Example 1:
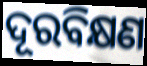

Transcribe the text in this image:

ଦୂରବିକ୍ଷଣ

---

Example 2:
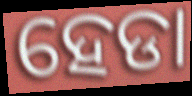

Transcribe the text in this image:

ହେଡା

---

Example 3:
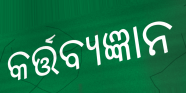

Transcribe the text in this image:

କର୍ତ୍ତବ୍ୟଜ୍ଞାନ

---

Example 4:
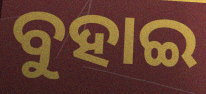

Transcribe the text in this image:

ବୁହାଇ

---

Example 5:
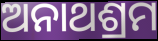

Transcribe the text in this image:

ଅନାଥଶ୍ରମ